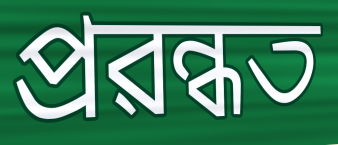
প্ৰৱন্ধত